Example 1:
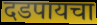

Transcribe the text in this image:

दडपायचा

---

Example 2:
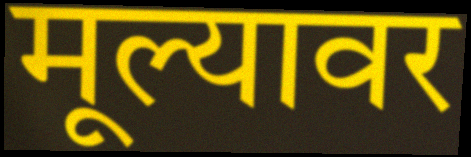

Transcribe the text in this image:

मूल्यावर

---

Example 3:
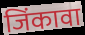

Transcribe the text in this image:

जिंकावा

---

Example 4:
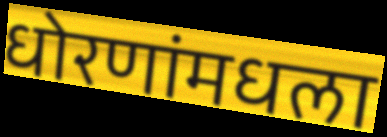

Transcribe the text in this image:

धोरणांमधला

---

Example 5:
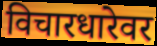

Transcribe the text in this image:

विचारधारेवर